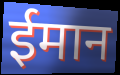
ईमान